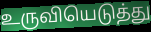
உருவியெடுத்து